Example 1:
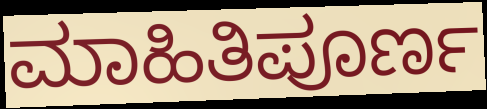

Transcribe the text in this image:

ಮಾಹಿತಿಪೂರ್ಣ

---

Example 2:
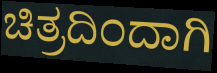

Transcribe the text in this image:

ಚಿತ್ರದಿಂದಾಗಿ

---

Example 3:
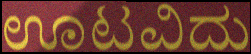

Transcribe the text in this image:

ಊಟವಿದು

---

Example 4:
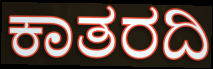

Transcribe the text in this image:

ಕಾತರದಿ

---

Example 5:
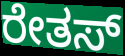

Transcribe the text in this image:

ರೇತಸ್